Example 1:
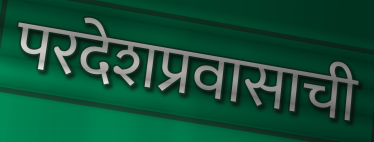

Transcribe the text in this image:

परदेशप्रवासाची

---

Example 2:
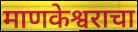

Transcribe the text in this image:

माणकेश्वराचा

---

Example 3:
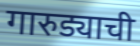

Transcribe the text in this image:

गारुड्याची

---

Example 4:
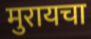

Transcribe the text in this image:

मुरायचा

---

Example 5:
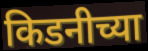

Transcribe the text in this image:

किडनीच्या